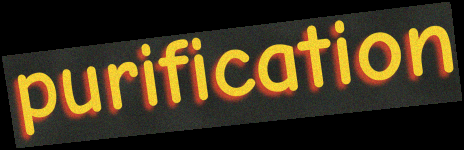
purification